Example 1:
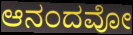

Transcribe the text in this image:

ಆನಂದವೋ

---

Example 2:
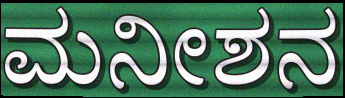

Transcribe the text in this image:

ಮನೀಶನ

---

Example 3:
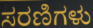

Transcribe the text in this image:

ಸರಣಿಗಳು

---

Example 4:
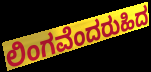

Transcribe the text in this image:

ಲಿಂಗವೆಂದರುಹಿದ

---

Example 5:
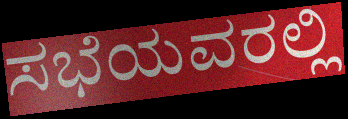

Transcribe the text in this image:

ಸಭೆಯವರಲ್ಲಿ